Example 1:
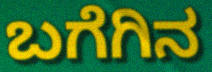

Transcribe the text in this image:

ಬಗೆಗಿನ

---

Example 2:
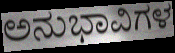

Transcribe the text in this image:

ಅನುಭಾವಿಗಳ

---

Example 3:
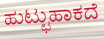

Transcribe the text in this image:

ಹುಟ್ಟುಹಾಕದೆ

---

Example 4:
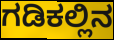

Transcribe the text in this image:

ಗಡಿಕಲ್ಲಿನ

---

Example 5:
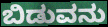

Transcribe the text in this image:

ಬಿಡುವನು